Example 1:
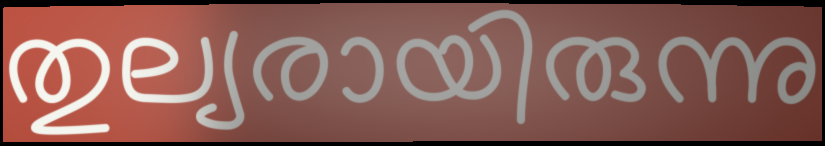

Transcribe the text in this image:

തുല്യരായിരുന്നു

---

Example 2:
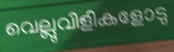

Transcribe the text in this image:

വെല്ലുവിളികളോടു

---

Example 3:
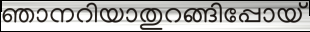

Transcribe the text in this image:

ഞാനറിയാതുറങ്ങിപ്പോയ്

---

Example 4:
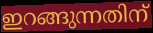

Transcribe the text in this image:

ഇറങ്ങുന്നതിന്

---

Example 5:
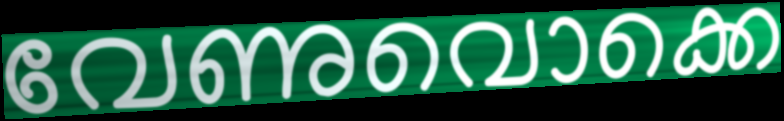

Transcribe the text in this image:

വേണുവൊക്കെ